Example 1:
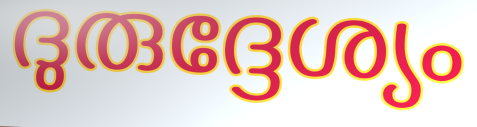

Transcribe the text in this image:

ദുരുദ്ദേശ്യം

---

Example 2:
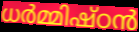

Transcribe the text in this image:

ധർമ്മിഷ്ഠൻ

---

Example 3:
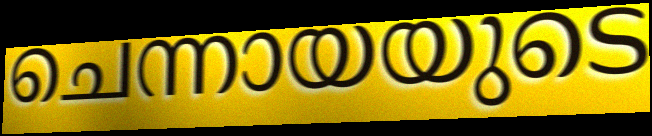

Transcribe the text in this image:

ചെന്നായയുടെ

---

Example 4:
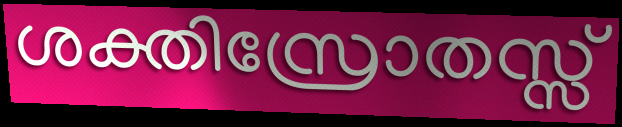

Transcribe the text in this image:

ശക്തിസ്രോതസ്സ്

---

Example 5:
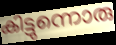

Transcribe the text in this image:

കിട്ടുന്നൊരു